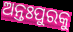
ଅନ୍ତଃପୁରକୁ